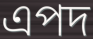
এপদ